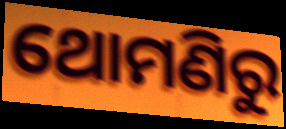
ଥୋମଣିରୁ